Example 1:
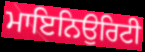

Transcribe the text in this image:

ਮਾਇਨਿਉਰਿਟੀ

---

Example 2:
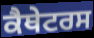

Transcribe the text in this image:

ਕੈਥੇਟਰਸ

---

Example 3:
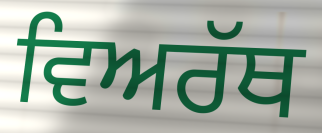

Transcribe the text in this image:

ਵਿਅਰੱਥ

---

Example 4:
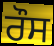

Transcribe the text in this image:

ਰੌਸ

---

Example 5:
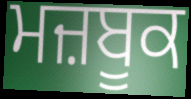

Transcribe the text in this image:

ਮਜ਼ਬੂਕ